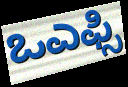
ಒಎಫ್ಸಿ